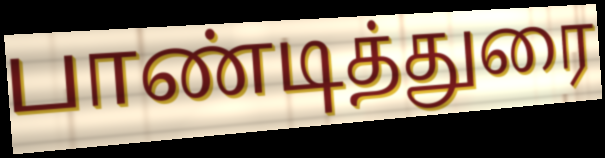
பாண்டித்துரை